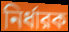
নির্ধারক